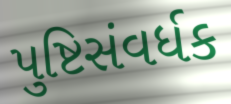
પુષ્ટિસંવર્ધક